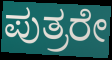
ಪುತ್ರರೇ